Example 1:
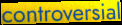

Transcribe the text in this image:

controversial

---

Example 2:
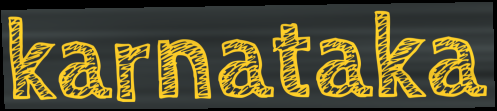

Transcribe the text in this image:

karnataka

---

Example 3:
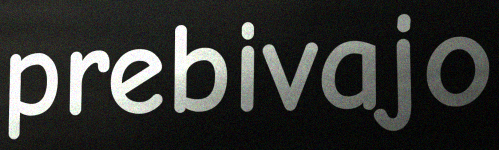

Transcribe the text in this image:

prebivajo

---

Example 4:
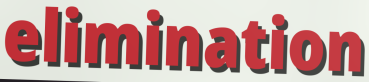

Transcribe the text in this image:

elimination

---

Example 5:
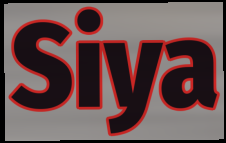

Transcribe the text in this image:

Siya